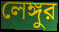
লেঙ্গুর